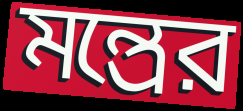
মন্ত্রের